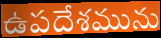
ఉపదేశమును